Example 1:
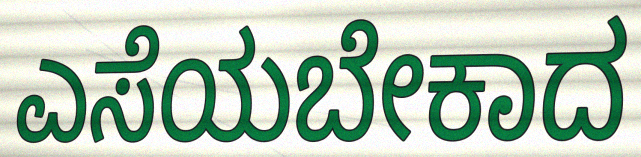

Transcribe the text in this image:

ಎಸೆಯಬೇಕಾದ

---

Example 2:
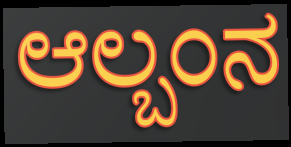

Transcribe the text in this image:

ಆಲ್ಬಂನ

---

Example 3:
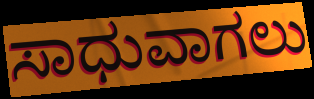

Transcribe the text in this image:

ಸಾಧುವಾಗಲು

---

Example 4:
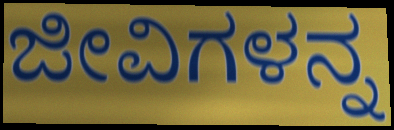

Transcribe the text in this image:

ಜೀವಿಗಳನ್ನ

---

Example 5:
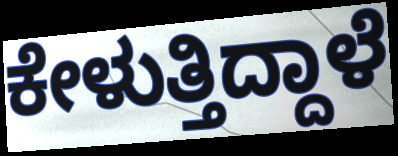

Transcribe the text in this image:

ಕೇಳುತ್ತಿದ್ದಾಳೆ